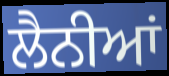
ਲੈਨੀਆਂ